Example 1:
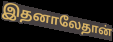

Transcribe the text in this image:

இதனாலேதான்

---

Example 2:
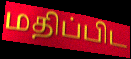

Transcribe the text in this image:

மதிப்பிட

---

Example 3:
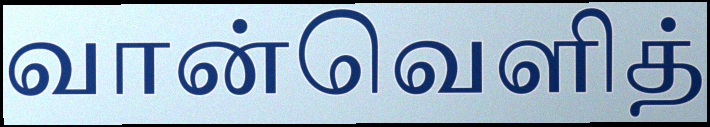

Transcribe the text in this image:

வான்வெளித்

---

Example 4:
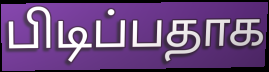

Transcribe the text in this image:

பிடிப்பதாக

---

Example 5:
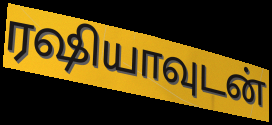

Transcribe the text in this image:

ரஷியாவுடன்